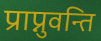
प्राप्नुवन्ति